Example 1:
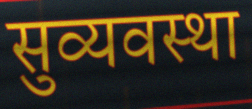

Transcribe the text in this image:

सुव्यवस्था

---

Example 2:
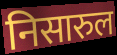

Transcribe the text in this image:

निसारुल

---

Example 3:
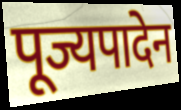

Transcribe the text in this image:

पूज्यपादेन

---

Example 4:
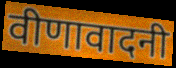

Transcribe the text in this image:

वीणावादनी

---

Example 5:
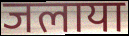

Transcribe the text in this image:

जलाया